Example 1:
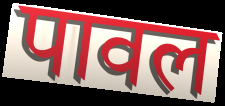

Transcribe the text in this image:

पावल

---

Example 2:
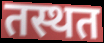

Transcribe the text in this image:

तस्थत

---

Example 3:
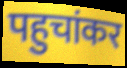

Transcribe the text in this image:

पहुचांकर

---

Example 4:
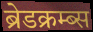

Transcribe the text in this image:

ब्रेडक्रम्ब्स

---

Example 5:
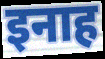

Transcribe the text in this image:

इनाह